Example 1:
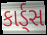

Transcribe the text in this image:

કાર્ડ્સ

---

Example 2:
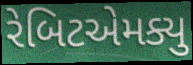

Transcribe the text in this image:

રેબિટએમક્યુ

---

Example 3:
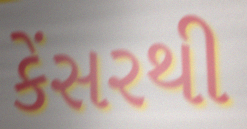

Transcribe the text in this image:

કેંસરથી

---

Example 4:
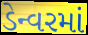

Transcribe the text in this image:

ડેન્વરમાં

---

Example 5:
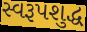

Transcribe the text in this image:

સ્વરૂપશુદ્ધ